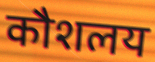
कौशलय